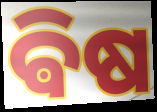
ଵିଷ